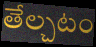
తేల్చటం